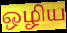
ஒழிய